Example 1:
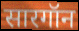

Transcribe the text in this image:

सारगॉन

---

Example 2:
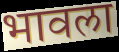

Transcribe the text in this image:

भावला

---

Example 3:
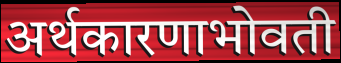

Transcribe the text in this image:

अर्थकारणाभोवती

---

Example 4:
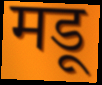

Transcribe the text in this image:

मडू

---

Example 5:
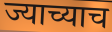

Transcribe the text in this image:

ज्याच्याच